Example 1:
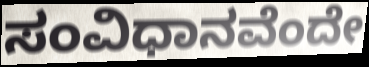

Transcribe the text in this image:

ಸಂವಿಧಾನವೆಂದೇ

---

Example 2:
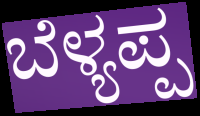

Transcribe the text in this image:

ಬೆಳ್ಯಪ್ಪ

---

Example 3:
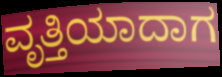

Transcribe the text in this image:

ವೃತ್ತಿಯಾದಾಗ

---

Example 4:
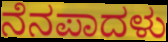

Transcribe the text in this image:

ನೆನಪಾದಳು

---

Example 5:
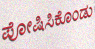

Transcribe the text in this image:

ಪೋಷಿಸಿಕೊಂಡು